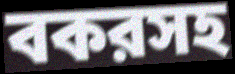
বকরসহ